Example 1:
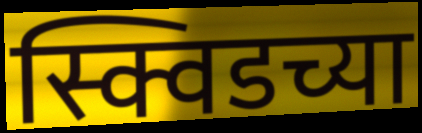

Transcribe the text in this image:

स्क्विडच्या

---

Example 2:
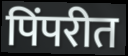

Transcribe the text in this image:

पिंपरीत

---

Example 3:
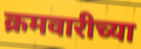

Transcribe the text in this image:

क्रमवारीच्या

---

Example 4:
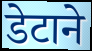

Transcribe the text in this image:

डेटाने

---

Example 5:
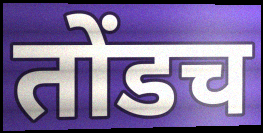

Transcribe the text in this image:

तोंडच